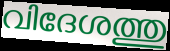
വിദേശത്തു